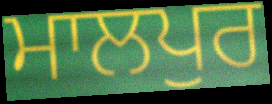
ਮਾਲਪੁਰ